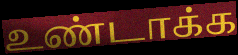
உண்டாக்க